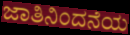
ಜಾತಿನಿಂದನೆಯ